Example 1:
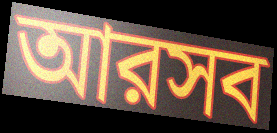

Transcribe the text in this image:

আরসব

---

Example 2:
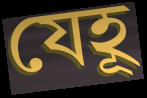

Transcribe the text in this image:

যেহূ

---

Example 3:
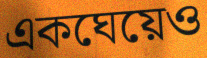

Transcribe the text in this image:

একঘেয়েও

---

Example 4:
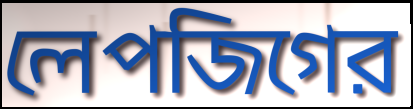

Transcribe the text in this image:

লেপজিগের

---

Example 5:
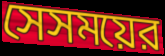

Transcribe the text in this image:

সেসময়ের